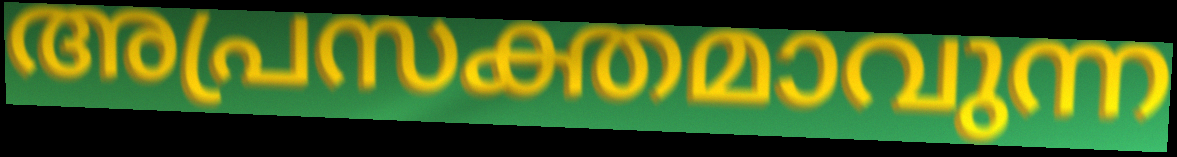
അപ്രസക്തമാവുന്ന